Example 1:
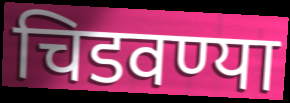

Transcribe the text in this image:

चिडवण्या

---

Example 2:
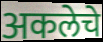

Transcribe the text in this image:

अकलेचे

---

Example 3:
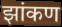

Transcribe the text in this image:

झांकण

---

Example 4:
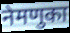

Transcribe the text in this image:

नेमणुका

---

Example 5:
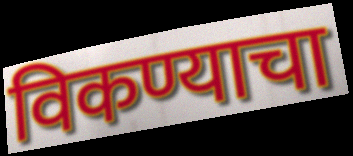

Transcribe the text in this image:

विकण्याचा